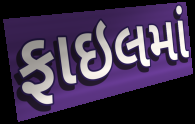
ફાઇલમાં